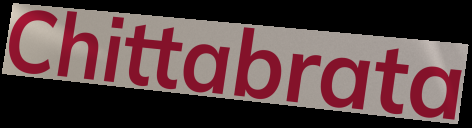
Chittabrata